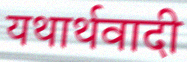
यथार्थवादी